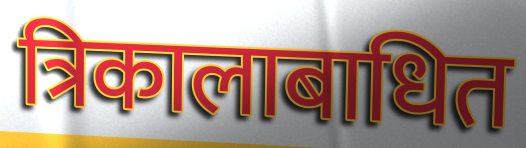
त्रिकालाबाधित